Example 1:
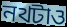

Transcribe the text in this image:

নথটাও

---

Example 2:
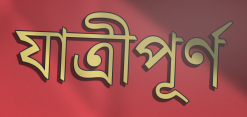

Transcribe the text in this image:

যাত্রীপূর্ণ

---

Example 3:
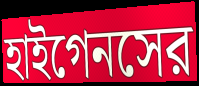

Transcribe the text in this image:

হাইগেনসের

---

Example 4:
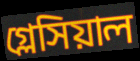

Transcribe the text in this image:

গ্লেসিয়াল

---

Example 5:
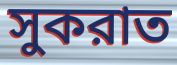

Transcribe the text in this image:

সুকরাত